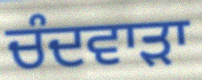
ਚੰਦਵਾੜਾ